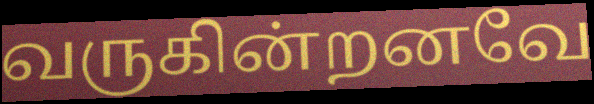
வருகின்றனவே